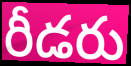
రీడరు